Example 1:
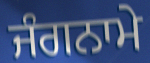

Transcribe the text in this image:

ਜੰਗਨਾਮੇ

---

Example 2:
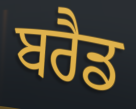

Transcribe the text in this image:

ਬਰੈਡ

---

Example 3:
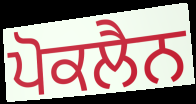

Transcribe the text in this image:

ਪੋਕਲੈਨ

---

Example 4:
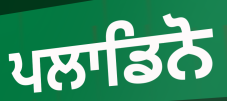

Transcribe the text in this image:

ਪਲਾਡਿਨੋ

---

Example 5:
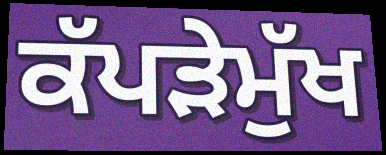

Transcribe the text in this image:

ਕੱਪੜੇਮੁੱਖ